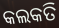
କଲକତି